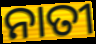
ନାତୀ